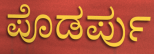
ಪೊಡರ್ಪು